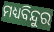
ମଧ୍ୟବିନ୍ଦୁର